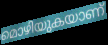
മൊഴിയുകയാണ്